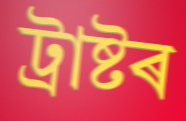
ট্ৰাষ্টৰ